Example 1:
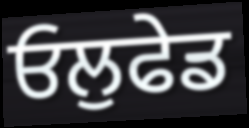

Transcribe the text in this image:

ਓਲੁਫੇਡ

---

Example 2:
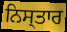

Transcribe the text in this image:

ਨਿਸ੍ਤਾਰ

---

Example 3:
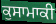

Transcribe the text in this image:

ਕੁਸਾਮਾਕੀ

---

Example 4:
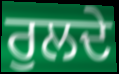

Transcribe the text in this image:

ਰੁਲਦੇ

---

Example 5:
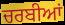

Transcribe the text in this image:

ਚਰਬੀਆਂ